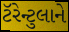
ટૅરેન્ટુલાને